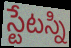
స్టేటస్ని